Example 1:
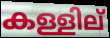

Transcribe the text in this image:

കള്ളില്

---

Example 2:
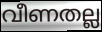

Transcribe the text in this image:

വീണതല്ല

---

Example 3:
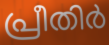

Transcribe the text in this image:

പ്രീതിർ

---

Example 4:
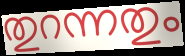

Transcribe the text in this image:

തുറന്നതും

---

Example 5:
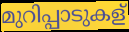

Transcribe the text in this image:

മുറിപ്പാടുകള്